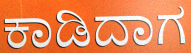
ಕಾಡಿದಾಗ